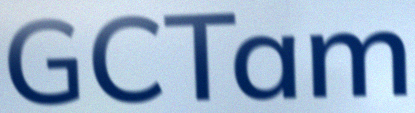
GCTam